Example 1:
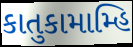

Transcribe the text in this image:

કાતુકામામ્હિ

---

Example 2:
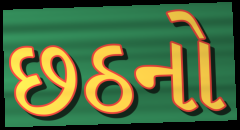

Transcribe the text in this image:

છઠનો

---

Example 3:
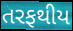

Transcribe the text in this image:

તરફથીય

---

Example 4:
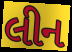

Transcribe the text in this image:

લીન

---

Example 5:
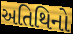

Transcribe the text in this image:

અતિથિનો